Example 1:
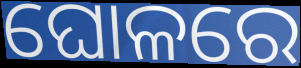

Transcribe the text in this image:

ଘୋଳରେ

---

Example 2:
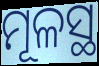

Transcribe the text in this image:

ମୂଳସ୍ଥ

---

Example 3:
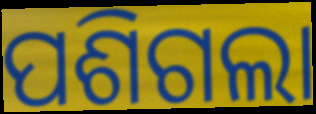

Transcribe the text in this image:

ପଶିଗଲା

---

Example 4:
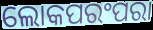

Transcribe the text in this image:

ଲୋକପରଂପରା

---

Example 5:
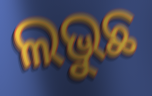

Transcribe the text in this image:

ଲଭୁଛ